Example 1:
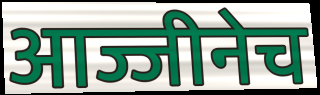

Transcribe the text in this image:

आज्जीनेच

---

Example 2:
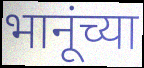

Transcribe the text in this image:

भानूंच्या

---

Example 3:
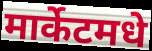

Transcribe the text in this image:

मार्केटमधे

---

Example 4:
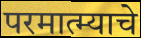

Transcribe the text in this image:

परमात्म्याचे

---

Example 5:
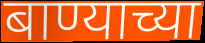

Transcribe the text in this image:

बाण्याच्या